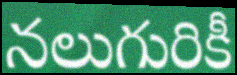
నలుగురికీ